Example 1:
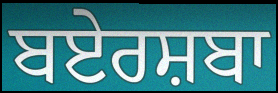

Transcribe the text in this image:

ਬਏਰਸ਼ਬਾ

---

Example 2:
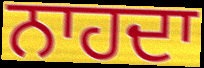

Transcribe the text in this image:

ਨਾਹਦਾ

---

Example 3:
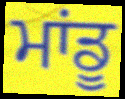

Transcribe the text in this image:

ਮਾਂਡੂ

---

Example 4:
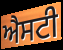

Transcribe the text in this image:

ਐਸਟੀ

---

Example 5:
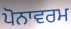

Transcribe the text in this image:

ਪੋਨਾਵਰਮ